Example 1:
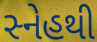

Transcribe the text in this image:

સ્નેહથી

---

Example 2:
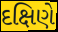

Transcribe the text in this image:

દક્ષિણે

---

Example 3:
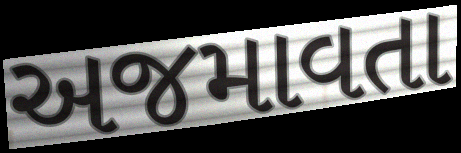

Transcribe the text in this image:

અજમાવતા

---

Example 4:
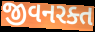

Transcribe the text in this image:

જીવનરક્ત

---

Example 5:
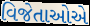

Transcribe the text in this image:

વિજેતાઓએ